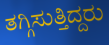
ತಗ್ಗಿಸುತ್ತಿದ್ದರು